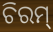
ଚିରମ୍